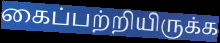
கைப்பற்றியிருக்க